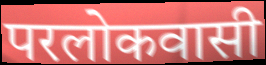
परलोकवासी